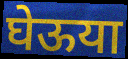
घेऊया